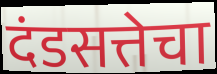
दंडसत्तेचा